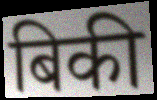
बिकी